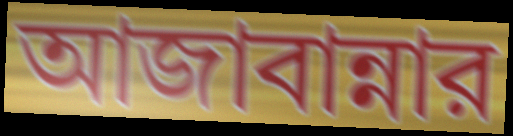
আজাবান্নার